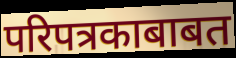
परिपत्रकाबाबत